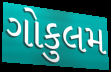
ગોકુલમ